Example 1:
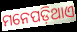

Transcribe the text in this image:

ମନେପଡ଼ିଥାଏ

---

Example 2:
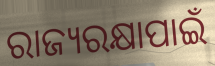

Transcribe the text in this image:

ରାଜ୍ୟରକ୍ଷାପାଇଁ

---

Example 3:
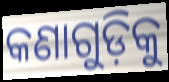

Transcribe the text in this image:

କଣାଗୁଡ଼ିକୁ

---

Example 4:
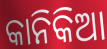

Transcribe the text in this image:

କାନିକିଆ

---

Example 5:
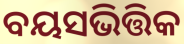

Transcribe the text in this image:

ବୟସଭିତ୍ତିକ